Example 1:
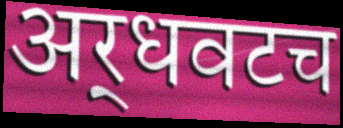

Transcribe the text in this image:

अर्धवटच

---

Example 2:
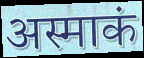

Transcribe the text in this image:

अस्माकं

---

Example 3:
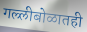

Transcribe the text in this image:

गल्लीबोळातही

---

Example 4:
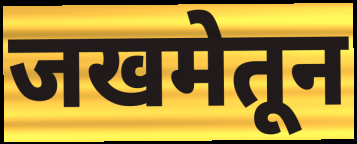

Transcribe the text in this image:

जखमेतून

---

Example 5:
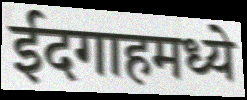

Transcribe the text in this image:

ईदगाहमध्ये